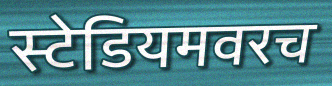
स्टेडियमवरच